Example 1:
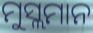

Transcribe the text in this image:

ମୁସ୍ଲମାନ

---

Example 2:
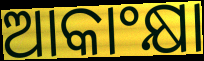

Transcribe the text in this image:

ଆକାଂକ୍ଷା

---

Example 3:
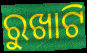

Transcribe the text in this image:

ରୁଖାଟି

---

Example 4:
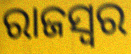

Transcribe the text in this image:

ରାଜସ୍ବର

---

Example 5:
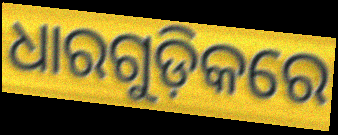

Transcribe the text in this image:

ଧାରଗୁଡ଼ିକରେ